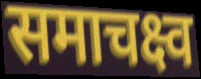
समाचक्ष्व